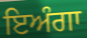
ਇਅੰਗਾ